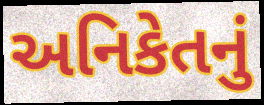
અનિકેતનું